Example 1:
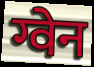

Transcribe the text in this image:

ग्वेन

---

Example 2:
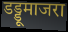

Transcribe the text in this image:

डड्डूमाजरा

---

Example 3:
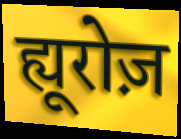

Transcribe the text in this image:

ह्यूरोज़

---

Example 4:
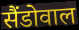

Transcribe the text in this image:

सैंडोवाल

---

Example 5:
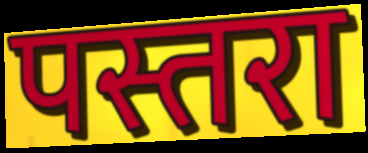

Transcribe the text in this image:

पस्तरा